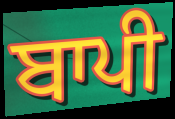
ਬਾਪੀ